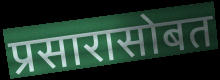
प्रसारासोबत